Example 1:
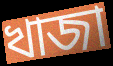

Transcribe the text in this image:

খাজা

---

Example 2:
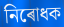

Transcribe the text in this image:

নিৰোধক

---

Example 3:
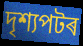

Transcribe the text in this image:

দৃশ্যপটৰ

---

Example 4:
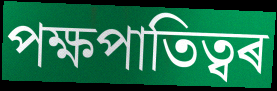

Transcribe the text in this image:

পক্ষপাতিত্বৰ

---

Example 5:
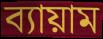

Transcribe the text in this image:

ব্যায়াম